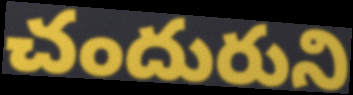
చందురుని